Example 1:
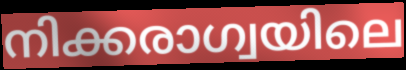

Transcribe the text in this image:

നിക്കരാഗ്വയിലെ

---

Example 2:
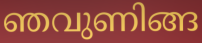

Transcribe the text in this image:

ഞവുണിങ്ങ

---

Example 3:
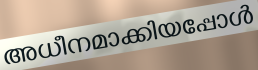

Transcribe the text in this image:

അധീനമാക്കിയപ്പോൾ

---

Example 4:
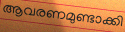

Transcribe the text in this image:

ആവരണമുണ്ടാക്കി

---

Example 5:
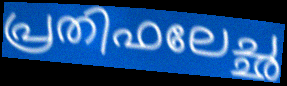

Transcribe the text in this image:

പ്രതിഫലേച്ഛ